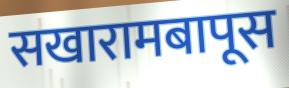
सखारामबापूस